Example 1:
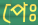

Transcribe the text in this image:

পেঃ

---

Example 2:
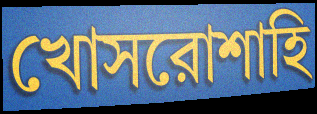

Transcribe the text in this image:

খোসরোশাহি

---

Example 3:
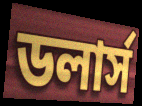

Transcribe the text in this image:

ডলার্স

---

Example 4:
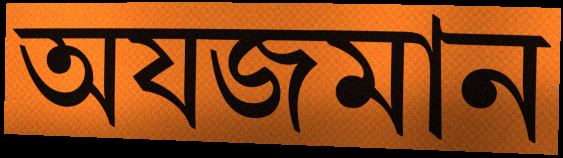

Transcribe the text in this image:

অযজমান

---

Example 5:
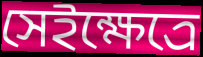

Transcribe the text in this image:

সেইক্ষেত্রে